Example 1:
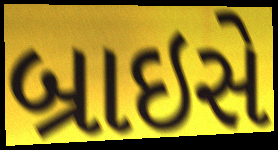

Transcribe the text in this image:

બ્રાઇસે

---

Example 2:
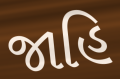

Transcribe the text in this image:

જાહિ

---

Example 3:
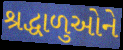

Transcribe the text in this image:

શ્રદ્ધાળુઓને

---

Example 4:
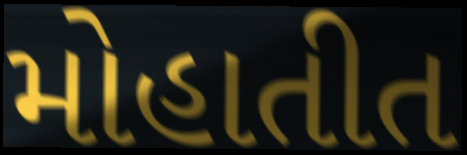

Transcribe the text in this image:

મોહાતીત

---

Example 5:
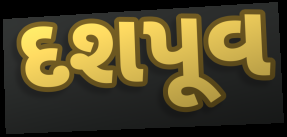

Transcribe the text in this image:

દશપૂવ